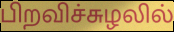
பிறவிச்சுழலில்